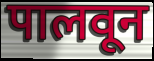
पालवून